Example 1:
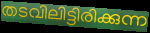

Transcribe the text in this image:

തടവിലിട്ടിരിക്കുന്ന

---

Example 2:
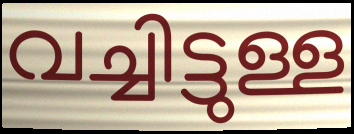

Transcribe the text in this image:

വച്ചിട്ടുള്ള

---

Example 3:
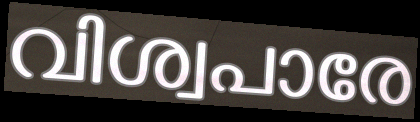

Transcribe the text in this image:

വിശ്വപാരേ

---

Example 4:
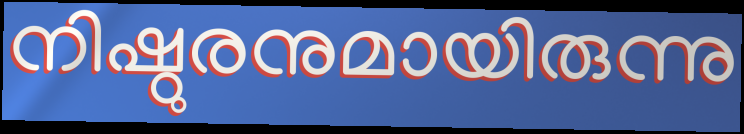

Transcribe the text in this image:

നിഷ്ഠുരനുമായിരുന്നു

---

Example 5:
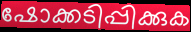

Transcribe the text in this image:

ഷോക്കടിപ്പിക്കുക